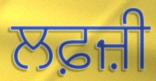
ਲਫ਼ਜ਼ੀ